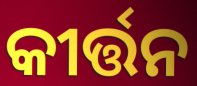
କୀର୍ତ୍ତନ